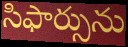
సిఫార్సును